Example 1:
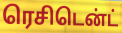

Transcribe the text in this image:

ரெசிடென்ட்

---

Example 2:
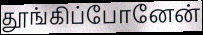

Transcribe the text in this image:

தூங்கிப்போனேன்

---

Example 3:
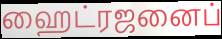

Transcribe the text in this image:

ஹைட்ரஜனைப்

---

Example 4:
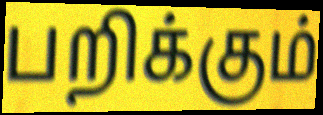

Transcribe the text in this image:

பறிக்கும்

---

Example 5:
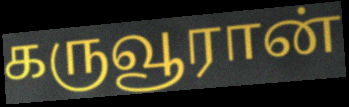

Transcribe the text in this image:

கருவூரான்